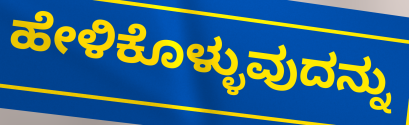
ಹೇಳಿಕೊಳ್ಳುವುದನ್ನು